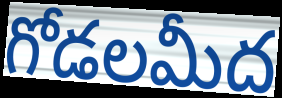
గోడలమీద